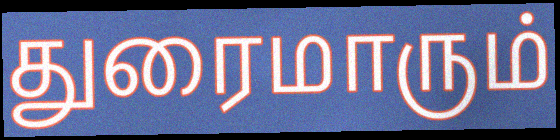
துரைமாரும்